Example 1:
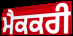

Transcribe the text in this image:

ਮੈਕਕਰੀ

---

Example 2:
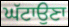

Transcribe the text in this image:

ਘੱਟਾਉਣਾ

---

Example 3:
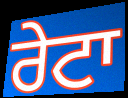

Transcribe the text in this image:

ਰੇਟਾ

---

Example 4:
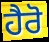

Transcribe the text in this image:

ਹੈਰੋ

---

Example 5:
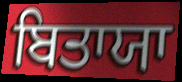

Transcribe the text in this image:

ਬਿਤਾਯਾ